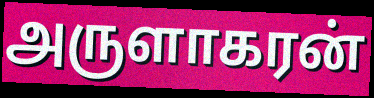
அருளாகரன்